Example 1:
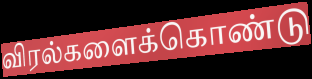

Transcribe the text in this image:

விரல்களைக்கொண்டு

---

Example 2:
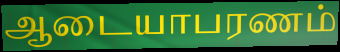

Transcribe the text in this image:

ஆடையாபரணம்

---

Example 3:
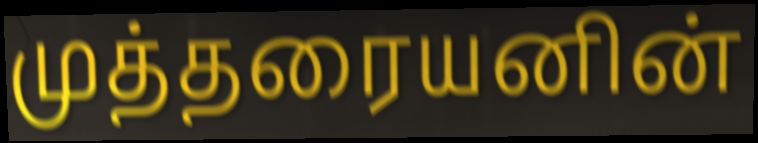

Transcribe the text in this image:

முத்தரையனின்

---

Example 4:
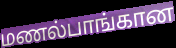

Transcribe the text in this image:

மணல்பாங்கான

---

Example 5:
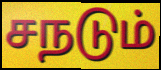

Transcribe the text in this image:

சநடும்